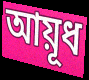
আয়ূধ